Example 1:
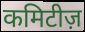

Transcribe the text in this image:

कमिटीज़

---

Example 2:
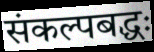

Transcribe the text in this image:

संकल्पबद्धः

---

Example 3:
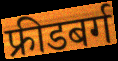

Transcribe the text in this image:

फ्रीडबर्ग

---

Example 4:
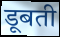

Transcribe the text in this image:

डूबती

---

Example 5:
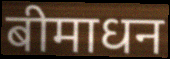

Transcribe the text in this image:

बीमाधन